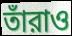
তাঁরাও